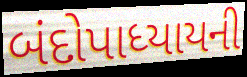
બંદોપાધ્યાયની